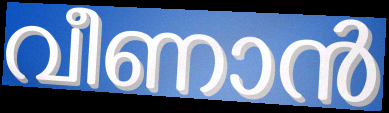
വീണാൻ